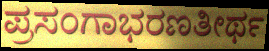
ಪ್ರಸಂಗಾಭರಣತೀರ್ಥ